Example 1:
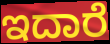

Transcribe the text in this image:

ಇದಾರೆ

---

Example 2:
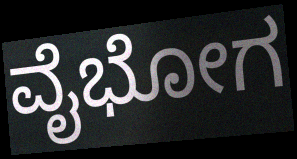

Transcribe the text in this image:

ವೈಭೋಗ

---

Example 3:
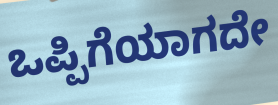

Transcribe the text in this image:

ಒಪ್ಪಿಗೆಯಾಗದೇ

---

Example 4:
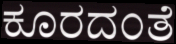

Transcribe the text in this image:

ಕೂರದಂತೆ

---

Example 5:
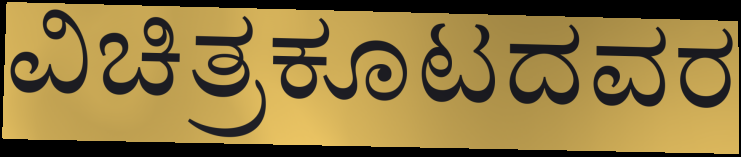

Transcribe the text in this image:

ವಿಚಿತ್ರಕೂಟದವರ